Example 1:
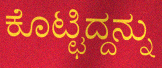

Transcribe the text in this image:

ಕೊಟ್ಟಿದ್ದನ್ನು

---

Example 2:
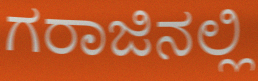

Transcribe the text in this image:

ಗರಾಜಿನಲ್ಲಿ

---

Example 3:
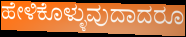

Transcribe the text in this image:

ಹೇಳಿಕೊಳ್ಳುವುದಾದರೂ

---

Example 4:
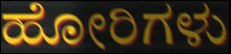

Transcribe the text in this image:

ಹೋರಿಗಳು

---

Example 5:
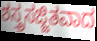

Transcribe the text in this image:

ಶಸ್ತ್ರಸಜ್ಜಿತವಾದ